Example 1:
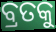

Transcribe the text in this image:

ବ୍ରତକୁ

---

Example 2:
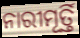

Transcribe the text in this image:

ନାରୀମୂର୍ତ୍ତି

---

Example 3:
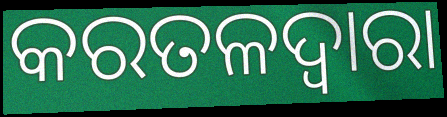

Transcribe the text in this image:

କରତଳଦ୍ୱାରା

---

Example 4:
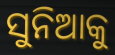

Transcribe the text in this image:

ସୁନିଆକୁ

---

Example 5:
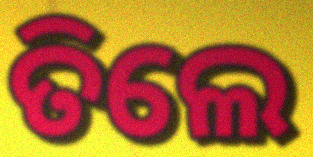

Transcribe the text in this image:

ତିଲେ